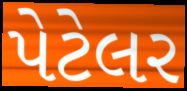
પેટેલર